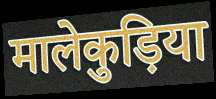
मालेकुड़िया